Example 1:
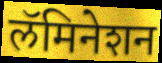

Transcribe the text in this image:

लॅमिनेशन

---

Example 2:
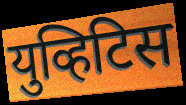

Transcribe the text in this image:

युव्हिटिस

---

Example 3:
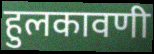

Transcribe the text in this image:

हुलकावणी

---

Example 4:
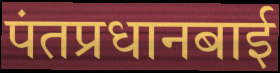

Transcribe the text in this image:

पंतप्रधानबाई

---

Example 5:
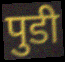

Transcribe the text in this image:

पुडी